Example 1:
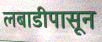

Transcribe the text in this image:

लबाडीपासून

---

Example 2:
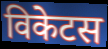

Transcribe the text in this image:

विकेटस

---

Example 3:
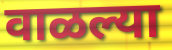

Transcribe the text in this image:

वाळल्या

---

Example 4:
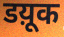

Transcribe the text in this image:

डय़ूक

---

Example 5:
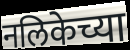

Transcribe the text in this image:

नलिकेच्या